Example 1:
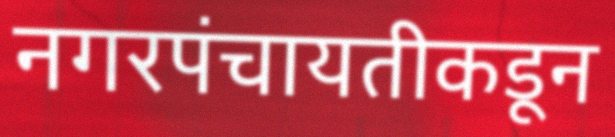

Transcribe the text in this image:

नगरपंचायतीकडून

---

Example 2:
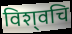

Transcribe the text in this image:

विश्वचि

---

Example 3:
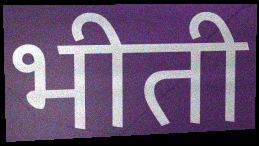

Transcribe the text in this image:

भीती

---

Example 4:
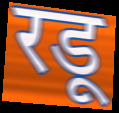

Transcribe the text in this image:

रडू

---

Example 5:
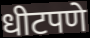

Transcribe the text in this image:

धीटपणे